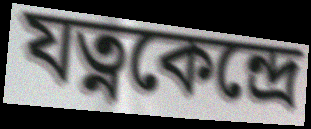
যত্নকেন্দ্রে